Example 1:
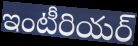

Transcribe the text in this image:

ఇంటీరియర్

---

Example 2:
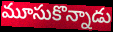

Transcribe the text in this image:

మూసుకొన్నాడు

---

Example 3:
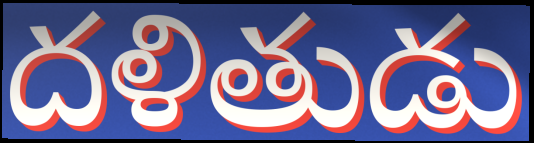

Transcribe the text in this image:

దళితుడు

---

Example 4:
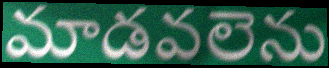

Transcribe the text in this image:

మాడవలెను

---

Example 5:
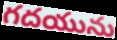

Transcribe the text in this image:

గదయును